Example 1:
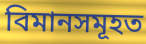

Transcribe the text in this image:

বিমানসমূহত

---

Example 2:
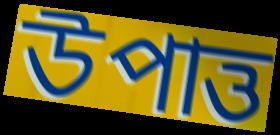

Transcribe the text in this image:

উপাত্ত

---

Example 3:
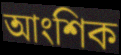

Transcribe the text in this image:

আংশিক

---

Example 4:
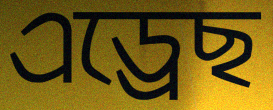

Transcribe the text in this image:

এড্ৰেছ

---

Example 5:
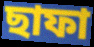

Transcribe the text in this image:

ছাফা